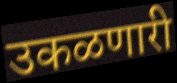
उकळणारी